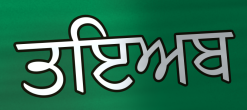
ਤਇਅਬ